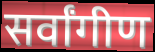
सर्वांगीण